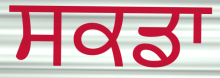
ਸਕਡਾ